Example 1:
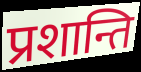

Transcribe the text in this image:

प्रशान्ति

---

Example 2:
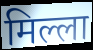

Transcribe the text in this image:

मिल्ला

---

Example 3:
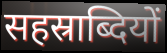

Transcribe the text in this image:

सहस्राब्दियों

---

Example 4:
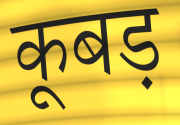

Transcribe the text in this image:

कूबड़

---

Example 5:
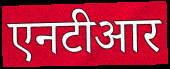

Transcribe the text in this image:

एनटीआर